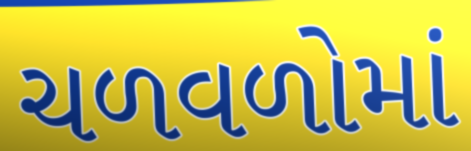
ચળવળોમાં